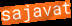
sajavat